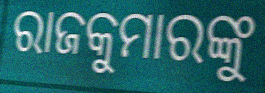
ରାଜକୁମାରଙ୍କୁ